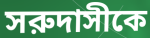
সরুদাসীকে